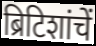
ब्रिटिशांचें